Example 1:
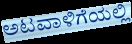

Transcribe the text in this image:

ಅಟವಾಳಿಗೆಯಲ್ಲಿ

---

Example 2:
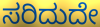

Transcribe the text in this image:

ಸರಿದುದೇ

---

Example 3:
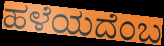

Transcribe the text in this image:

ಹಳೆಯದೆಂಬ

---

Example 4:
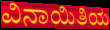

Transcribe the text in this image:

ವಿನಾಯಿತಿಯ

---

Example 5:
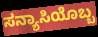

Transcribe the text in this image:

ಸನ್ಯಾಸಿಯೊಬ್ಬ